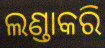
ଲଣ୍ଡାକରି